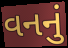
વનનું